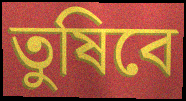
তুষিবে